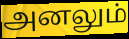
அனலும்